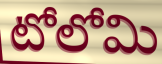
టోలోమి